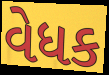
વેધક